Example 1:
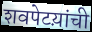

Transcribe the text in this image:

शवपेटय़ांची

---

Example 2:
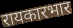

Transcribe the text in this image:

रायकारभार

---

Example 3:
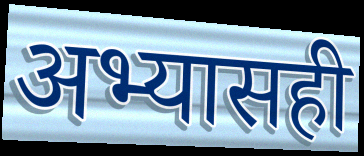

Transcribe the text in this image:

अभ्यासही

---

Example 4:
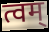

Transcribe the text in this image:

त्वम्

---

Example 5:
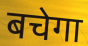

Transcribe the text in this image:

बचेगा